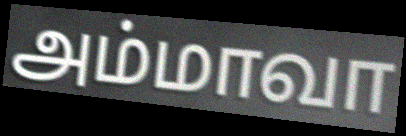
அம்மாவா